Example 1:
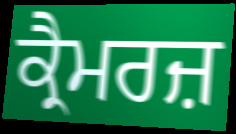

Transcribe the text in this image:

ਕ੍ਰੈਮਰਜ਼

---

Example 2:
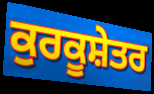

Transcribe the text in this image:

ਕੁਰਕੂਸ਼ੇਤਰ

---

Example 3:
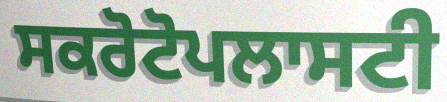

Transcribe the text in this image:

ਸਕਰੋਟੋਪਲਾਸਟੀ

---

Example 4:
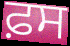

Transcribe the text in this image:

ਫ਼ਸ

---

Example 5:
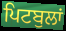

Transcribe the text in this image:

ਪਿਟਬੁਲਾਂ